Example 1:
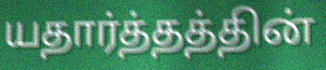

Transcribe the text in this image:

யதார்த்தத்தின்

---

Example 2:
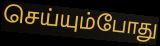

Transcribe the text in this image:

செய்யும்போது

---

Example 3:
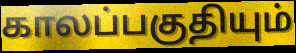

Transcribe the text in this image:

காலப்பகுதியும்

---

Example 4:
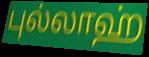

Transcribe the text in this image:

புல்லாஹ்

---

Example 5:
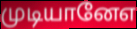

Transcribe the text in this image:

முடியானேஎ